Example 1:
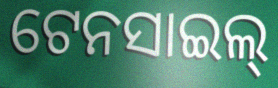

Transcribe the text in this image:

ଟେନସାଇଲ୍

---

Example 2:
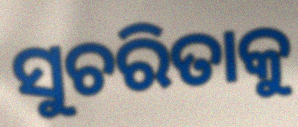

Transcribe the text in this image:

ସୁଚରିତାକୁ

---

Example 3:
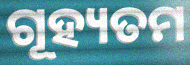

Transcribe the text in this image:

ଗୂହ୍ୟତମ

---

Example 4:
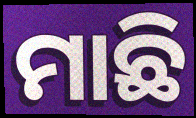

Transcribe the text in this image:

ମାଛି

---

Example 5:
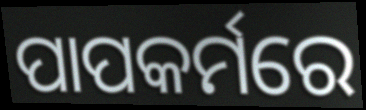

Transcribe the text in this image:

ପାପକର୍ମରେ